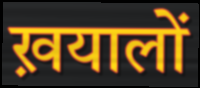
ख़यालों